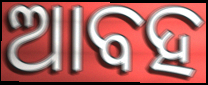
ଆବହ